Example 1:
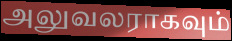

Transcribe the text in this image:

அலுவலராகவும்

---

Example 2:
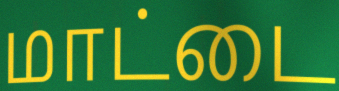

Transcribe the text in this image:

மாட்டை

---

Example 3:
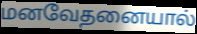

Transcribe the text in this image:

மனவேதனையால்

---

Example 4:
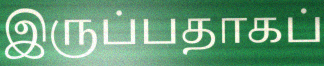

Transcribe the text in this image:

இருப்பதாகப்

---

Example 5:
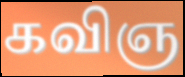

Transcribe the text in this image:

கவிஞ